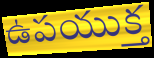
ఉపయుక్త